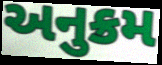
અનુક્રમ